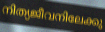
നിത്യജീവനിലേക്കു